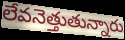
లేవనెత్తుతున్నారు